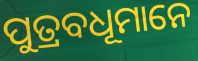
ପୁତ୍ରବଧୂମାନେ